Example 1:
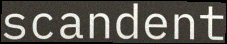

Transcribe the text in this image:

scandent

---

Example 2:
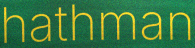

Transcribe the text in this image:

hathman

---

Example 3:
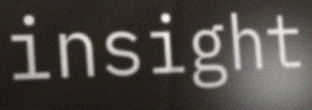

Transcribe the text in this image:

insight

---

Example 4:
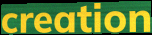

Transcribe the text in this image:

creation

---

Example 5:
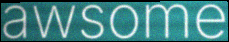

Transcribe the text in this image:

awsome